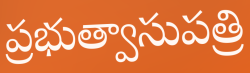
ప్రభుత్వాసుపత్రి